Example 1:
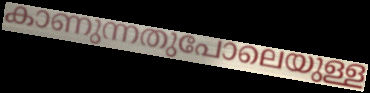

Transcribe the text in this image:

കാണുന്നതുപോലെയുള്ള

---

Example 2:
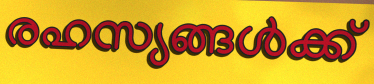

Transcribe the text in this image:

രഹസ്യങ്ങൾക്ക്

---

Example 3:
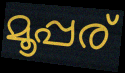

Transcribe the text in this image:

മൂപ്പര്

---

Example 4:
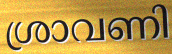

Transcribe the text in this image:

ശ്രാവണി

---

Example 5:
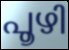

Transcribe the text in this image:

പൂഴി